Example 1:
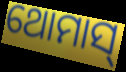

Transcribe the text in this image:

ଥୋମାସ୍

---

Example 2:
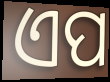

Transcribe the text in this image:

ଏପ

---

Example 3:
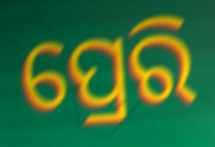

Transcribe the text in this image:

ପ୍ରେରି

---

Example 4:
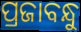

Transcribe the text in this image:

ପ୍ରଜାବନ୍ଧୁ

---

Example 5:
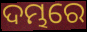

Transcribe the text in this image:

ଦମ୍ଭରେ